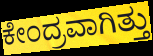
ಕೇಂದ್ರವಾಗಿತ್ತು